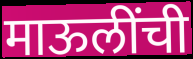
माऊलींची